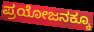
ಪ್ರಯೋಜನಕ್ಕೂ